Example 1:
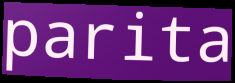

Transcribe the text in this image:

parita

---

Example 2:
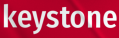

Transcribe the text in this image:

keystone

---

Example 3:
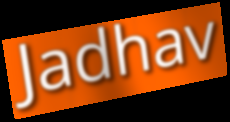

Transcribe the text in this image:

Jadhav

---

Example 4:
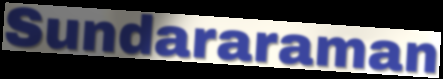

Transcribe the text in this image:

Sundararaman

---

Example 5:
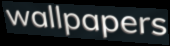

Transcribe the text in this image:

wallpapers